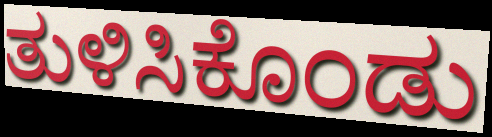
ತುಳಿಸಿಕೊಂಡು